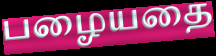
பழையதை